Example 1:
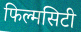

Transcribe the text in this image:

फिल्मसिटी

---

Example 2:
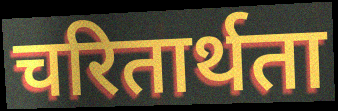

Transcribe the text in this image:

चरितार्थता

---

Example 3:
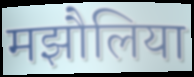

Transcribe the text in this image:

मझौलिया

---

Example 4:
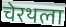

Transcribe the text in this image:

चेरथला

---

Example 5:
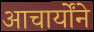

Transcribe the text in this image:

आचार्योंने